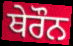
ਥੇਰੌਨ